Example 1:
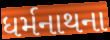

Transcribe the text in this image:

ધર્મનાથના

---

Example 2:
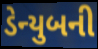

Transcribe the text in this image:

ડેન્યુબની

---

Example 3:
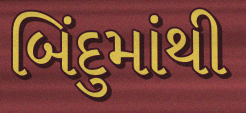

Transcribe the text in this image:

બિંદુમાંથી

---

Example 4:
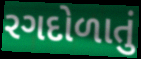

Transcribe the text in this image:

રગદોળાતું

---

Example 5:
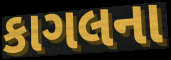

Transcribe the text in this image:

કાગલના